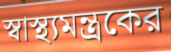
স্বাস্থ্যমন্ত্রকের